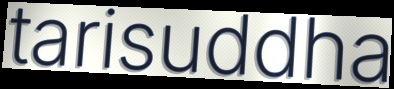
tarisuddha